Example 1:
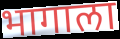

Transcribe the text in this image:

भागाला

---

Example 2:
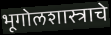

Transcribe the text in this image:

भूगोलशास्त्राचे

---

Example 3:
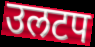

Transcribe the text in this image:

उलटप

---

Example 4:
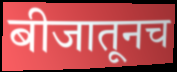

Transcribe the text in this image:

बीजातूनच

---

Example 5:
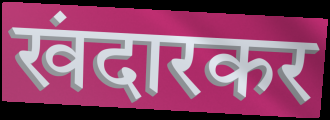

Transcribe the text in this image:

खंदारकर